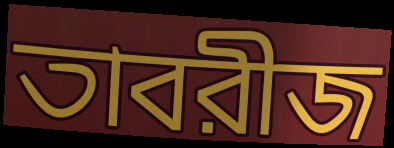
তাবরীজ